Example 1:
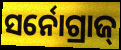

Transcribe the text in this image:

ସର୍ନୋଗ୍ରାଜ୍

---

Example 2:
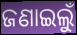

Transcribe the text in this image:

ଜଣାଇଲୁଁ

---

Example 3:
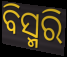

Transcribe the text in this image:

ବିସ୍ମରି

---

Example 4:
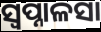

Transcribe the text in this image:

ସ୍ୱପ୍ନାଳସା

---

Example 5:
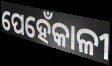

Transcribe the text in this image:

ପେହେଁକାଳୀ